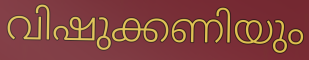
വിഷുക്കണിയും